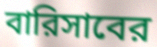
বারিসাবের